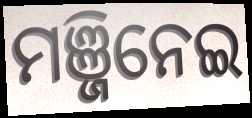
ମଞ୍ଜିନେଇ